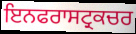
ਇਨਫਰਾਸਟ੍ਰਕਚਰ